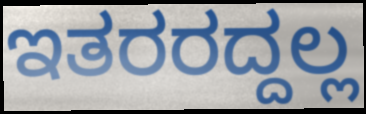
ಇತರರದ್ದಲ್ಲ